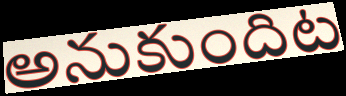
అనుకుందిట